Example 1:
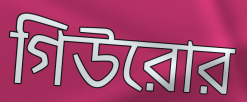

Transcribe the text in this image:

গিউরোর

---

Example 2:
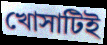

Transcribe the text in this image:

খোসাটিই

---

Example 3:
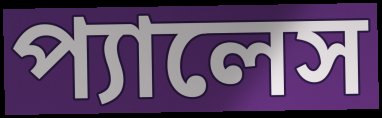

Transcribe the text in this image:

প্যালেস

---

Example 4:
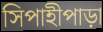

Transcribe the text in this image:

সিপাহীপাড়া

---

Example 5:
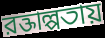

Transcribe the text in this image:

রক্তাল্পতায়